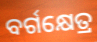
ବର୍ଗକ୍ଷେତ୍ର